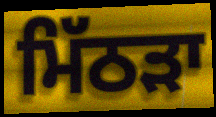
ਮਿੱਠੜਾ